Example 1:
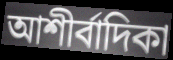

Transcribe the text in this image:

আশীর্বাদিকা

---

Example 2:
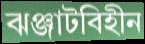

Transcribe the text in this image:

ঝঞ্জাটবিহীন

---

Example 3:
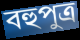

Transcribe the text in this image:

বহুপুত্র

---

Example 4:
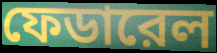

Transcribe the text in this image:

ফেডারেল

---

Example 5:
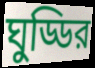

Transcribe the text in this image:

ঘুড্ডির